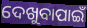
ଦେଖୁବାପାଇଁ